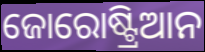
ଜୋରୋଷ୍ଟ୍ରିଆନ